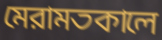
মেরামতকালে